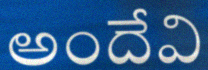
అందేవి